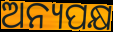
ଅନ୍ୟପକ୍ଷ